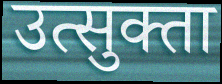
उत्सुक्ता